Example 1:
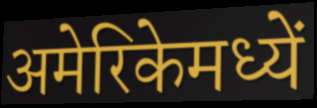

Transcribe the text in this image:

अमेरिकेमध्यें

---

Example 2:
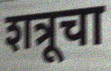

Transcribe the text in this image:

शत्रूचा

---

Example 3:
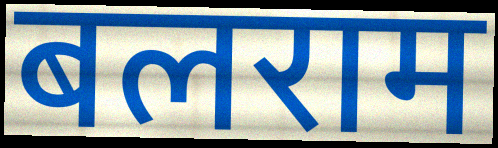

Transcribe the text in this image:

बलराम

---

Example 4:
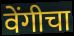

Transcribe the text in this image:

वेंगीचा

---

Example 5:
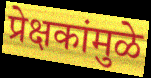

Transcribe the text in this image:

प्रेक्षकांमुळे